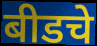
बीडचे